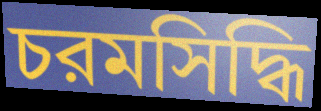
চরমসিদ্ধি